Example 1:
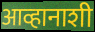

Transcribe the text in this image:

आव्हानाशी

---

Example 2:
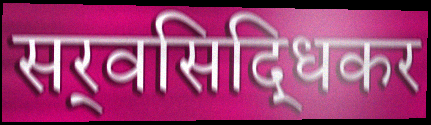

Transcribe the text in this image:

सर्वसिद्धिकर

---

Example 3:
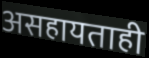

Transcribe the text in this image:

असहायताही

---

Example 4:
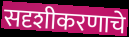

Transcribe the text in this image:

सदृशीकरणाचे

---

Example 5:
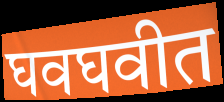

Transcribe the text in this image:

घवघवीत